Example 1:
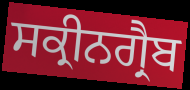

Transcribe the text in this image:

ਸਕ੍ਰੀਨਗ੍ਰੈਬ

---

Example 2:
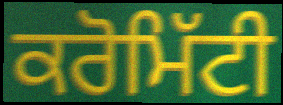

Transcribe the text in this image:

ਕਰੋਮਿੱਟੀ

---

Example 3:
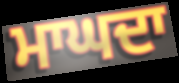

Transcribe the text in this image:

ਮਾਘਦਾ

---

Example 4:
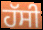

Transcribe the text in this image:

ਹੱਸੀ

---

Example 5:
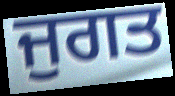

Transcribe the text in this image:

ਜੁਗਤ